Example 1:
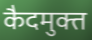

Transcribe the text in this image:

कैदमुक्त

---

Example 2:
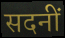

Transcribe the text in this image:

सदनीं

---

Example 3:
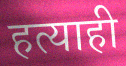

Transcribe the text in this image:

हत्याही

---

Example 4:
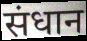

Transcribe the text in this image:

संधान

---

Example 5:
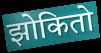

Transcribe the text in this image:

झोकितो